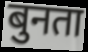
बुनता